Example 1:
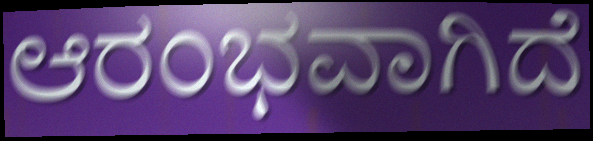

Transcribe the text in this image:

ಆರಂಭವಾಗಿದೆ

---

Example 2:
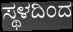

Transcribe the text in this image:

ಸ್ಥಳದಿಂದ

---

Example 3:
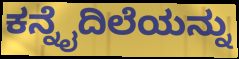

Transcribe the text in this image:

ಕನ್ನೈದಿಲೆಯನ್ನು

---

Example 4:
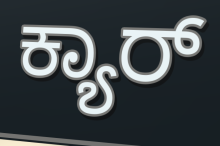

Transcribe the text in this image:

ಕ್ಯಾರ್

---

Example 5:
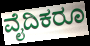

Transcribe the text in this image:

ವೈದಿಕರೂ